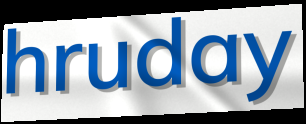
hruday